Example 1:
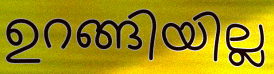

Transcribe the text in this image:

ഉറങ്ങിയില്ല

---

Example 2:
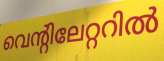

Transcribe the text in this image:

വെന്റിലേറ്ററിൽ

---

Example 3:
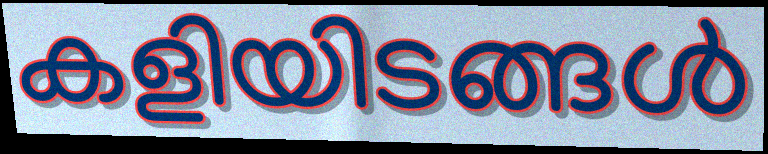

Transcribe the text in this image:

കളിയിടങ്ങൾ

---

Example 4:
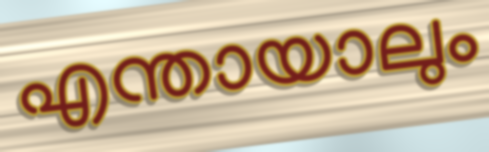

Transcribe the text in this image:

എന്തായാലും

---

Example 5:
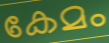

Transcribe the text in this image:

കേമം